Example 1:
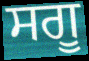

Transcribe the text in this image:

ਸਗੂ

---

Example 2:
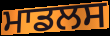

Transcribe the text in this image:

ਮਾਡਲਸ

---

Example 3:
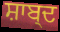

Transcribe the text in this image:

ਸ਼ਾਬ੍ਦ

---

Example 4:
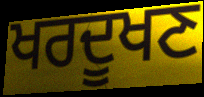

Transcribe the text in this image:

ਖਰਦੂਖਣ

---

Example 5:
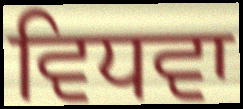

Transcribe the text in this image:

ਵਿਧਵਾ